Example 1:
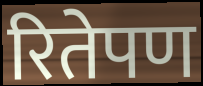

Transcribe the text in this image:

रितेपण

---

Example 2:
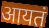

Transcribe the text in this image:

आयतं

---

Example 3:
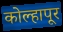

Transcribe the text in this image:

कोल्हापूर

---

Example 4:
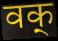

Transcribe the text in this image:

वक्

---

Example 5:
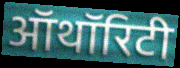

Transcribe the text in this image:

ऑथॉरिटी